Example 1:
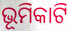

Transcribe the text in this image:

ଭୂମିକାଟି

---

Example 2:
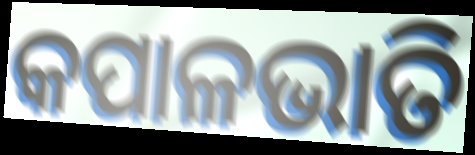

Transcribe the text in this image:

କପାଳଭାତି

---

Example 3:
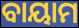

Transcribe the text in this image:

ବାୟାମ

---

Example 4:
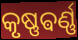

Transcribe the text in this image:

କୃଷ୍ଣଵର୍ଣ୍ଣ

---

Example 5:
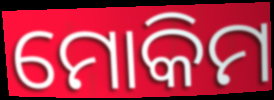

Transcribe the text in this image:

ମୋକିମ